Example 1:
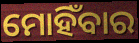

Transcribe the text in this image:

ମୋହିଁବାର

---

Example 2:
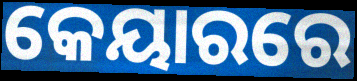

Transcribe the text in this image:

କେୟାରରେ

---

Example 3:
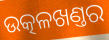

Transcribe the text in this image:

ଉତ୍କଳଖଣ୍ତର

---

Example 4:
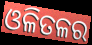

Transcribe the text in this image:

ଓଳିତଳର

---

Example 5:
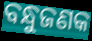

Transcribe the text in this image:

ବନ୍ଧୁଜଣକ